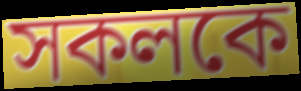
সকলকে